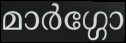
മാർഗ്ഗോ